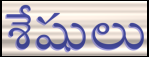
శేషులు